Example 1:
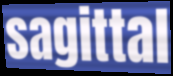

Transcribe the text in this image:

sagittal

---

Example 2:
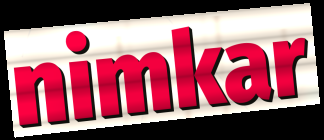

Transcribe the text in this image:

nimkar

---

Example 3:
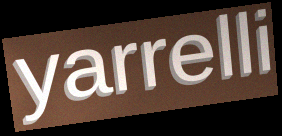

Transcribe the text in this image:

yarrelli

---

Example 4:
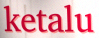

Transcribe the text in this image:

ketalu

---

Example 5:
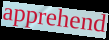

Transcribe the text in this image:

apprehend